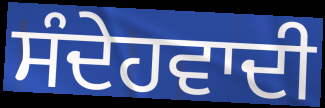
ਸੰਦੇਹਵਾਦੀ